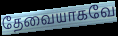
தேவையாகவே